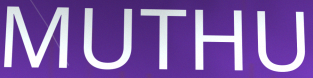
MUTHU